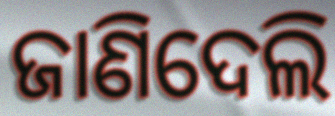
ଜାଣିଦେଲି